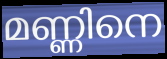
മണ്ണിനെ